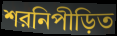
শরনিপীড়িত